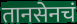
तानसेनचं